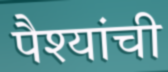
पैश्यांची